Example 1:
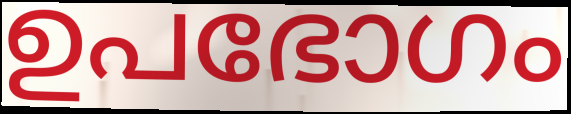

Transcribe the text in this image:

ഉപഭോഗം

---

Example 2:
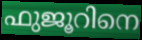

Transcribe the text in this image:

ഫുജൂറിനെ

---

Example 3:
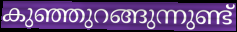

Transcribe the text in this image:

കുഞ്ഞുറങ്ങുന്നുണ്ട്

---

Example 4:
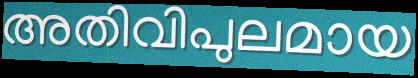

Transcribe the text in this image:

അതിവിപുലമായ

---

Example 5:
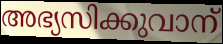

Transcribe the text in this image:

അഭ്യസിക്കുവാന്